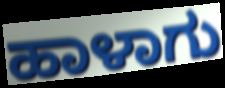
ಹಾಳಾಗು